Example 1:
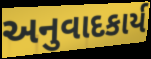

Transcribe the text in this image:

અનુવાદકાર્ય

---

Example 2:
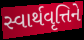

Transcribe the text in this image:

સ્વાર્થવૃત્તિને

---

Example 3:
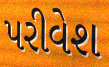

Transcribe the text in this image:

પરીવેશ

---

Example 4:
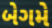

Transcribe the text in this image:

બેગમે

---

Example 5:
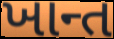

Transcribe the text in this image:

ખાન્ત